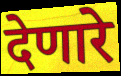
देणारे